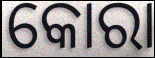
କୋରା